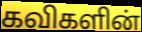
கவிகளின்